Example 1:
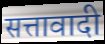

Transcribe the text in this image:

सत्तावादी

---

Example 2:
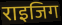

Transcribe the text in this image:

राइजिग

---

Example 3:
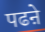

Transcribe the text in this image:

पढऩे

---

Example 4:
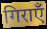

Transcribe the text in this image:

गिराएँ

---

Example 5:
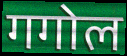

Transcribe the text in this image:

गगोल